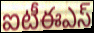
ఐటీఈఎస్